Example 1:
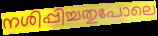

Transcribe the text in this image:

നശിപ്പിച്ചതുപോലെ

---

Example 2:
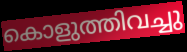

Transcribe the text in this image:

കൊളുത്തിവച്ചു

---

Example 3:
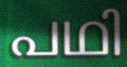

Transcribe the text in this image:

പഥി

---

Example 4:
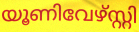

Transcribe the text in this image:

യൂണിവേഴ്സ്റ്റി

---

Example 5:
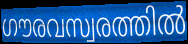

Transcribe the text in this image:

ഗൗരവസ്വരത്തിൽ